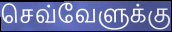
செவ்வேளுக்கு